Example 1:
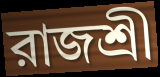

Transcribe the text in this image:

রাজশ্রী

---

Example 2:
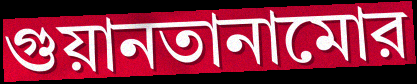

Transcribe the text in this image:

গুয়ানতানামোর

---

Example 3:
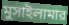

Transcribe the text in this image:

মুসাইলামার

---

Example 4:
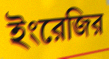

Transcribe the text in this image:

ইংরেজির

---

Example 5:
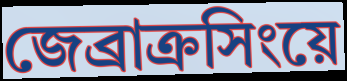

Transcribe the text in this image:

জেব্রাক্রসিংয়ে